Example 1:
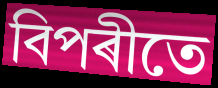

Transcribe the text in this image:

বিপৰীতে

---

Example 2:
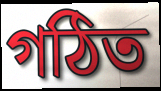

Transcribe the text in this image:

গঠিত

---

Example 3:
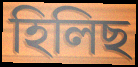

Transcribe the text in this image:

হিলিছ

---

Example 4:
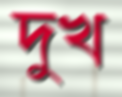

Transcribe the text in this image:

দুখ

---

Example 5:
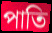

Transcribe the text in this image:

পাতি